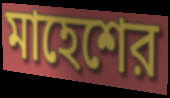
মাহেশের